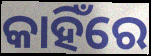
କାହିଁରେ